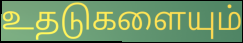
உதடுகளையும்